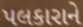
પલકારાને